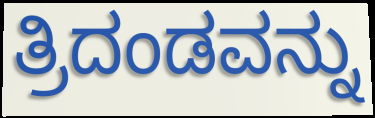
ತ್ರಿದಂಡವನ್ನು